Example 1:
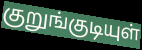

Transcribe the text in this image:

குறுங்குடியுள்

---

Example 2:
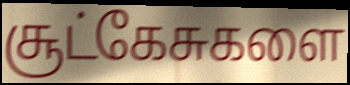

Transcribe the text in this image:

சூட்கேசுகளை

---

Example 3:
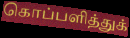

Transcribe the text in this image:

கொப்பளித்துக்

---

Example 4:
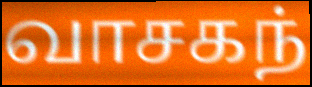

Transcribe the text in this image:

வாசகந்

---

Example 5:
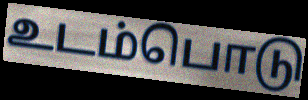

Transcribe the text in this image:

உடம்பொடு